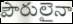
పౌరులైనా